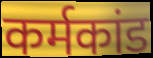
कर्मकांड